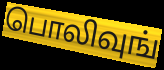
பொலிவுங்